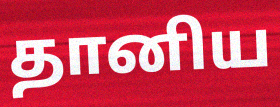
தானிய